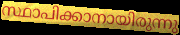
സ്ഥാപിക്കാനായിരുന്നു